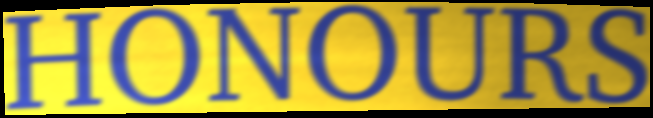
HONOURS